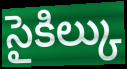
సైకిల్కు